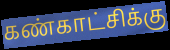
கண்காட்சிக்கு